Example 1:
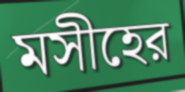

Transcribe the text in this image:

মসীহের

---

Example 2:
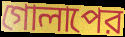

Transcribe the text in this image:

গোলাপের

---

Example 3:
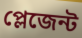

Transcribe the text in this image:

প্লেজেন্ট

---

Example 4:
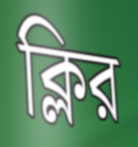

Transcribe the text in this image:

ক্লির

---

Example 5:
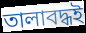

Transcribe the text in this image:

তালাবদ্ধই